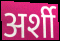
अर्शी